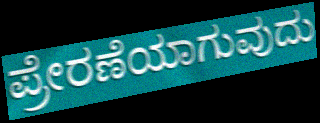
ಪ್ರೇರಣೆಯಾಗುವುದು